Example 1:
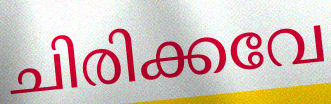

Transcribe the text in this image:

ചിരിക്കവേ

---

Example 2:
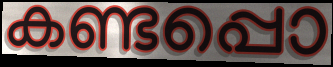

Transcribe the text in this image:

കണ്ടപ്പൊ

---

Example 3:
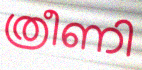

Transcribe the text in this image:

ത്രീണി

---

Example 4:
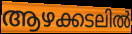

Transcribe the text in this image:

ആഴക്കടലിൽ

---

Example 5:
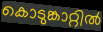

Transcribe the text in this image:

കൊടുങ്കാറ്റിൽ